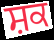
ਸ਼ਕ